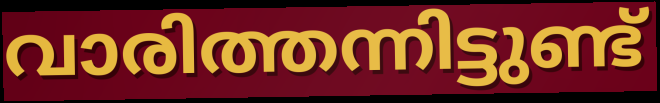
വാരിത്തന്നിട്ടുണ്ട്